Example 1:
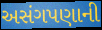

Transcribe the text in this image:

અસંગપણાની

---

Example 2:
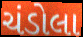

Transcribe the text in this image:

ચંડોલા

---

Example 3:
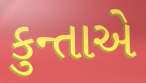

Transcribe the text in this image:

કુન્તાએ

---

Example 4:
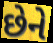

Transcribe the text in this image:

છેને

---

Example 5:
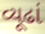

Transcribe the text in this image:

વ્યૂઢાં